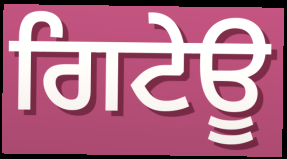
ਗਿਟੇਊ